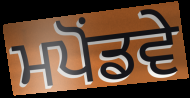
ਮਪੋਂਡਵੇ